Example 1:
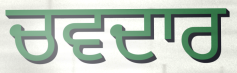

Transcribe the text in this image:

ਚਵਦਾਰ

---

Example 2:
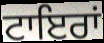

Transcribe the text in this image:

ਟਾਇਰਾਂ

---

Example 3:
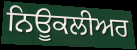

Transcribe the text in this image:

ਨਿਊਕਲੀਅਰ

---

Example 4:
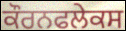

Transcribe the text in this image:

ਕੌਰਨਫਲੇਕਸ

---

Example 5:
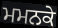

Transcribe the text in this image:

ਮਮਨਕੇ